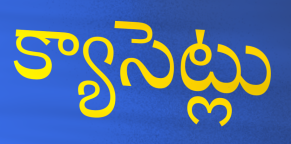
క్యాసెట్లు